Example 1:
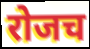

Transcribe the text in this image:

रोजच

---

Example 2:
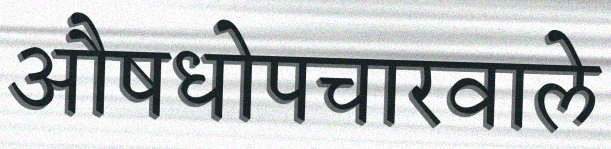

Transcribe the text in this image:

औषधोपचारवाले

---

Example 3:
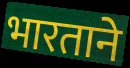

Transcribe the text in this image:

भारताने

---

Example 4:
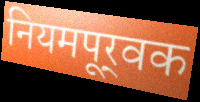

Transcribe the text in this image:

नियमपूर्वक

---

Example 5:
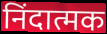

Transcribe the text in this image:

निंदात्मक